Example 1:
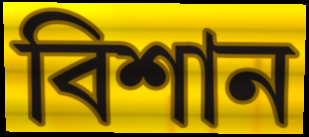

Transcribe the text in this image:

বিশান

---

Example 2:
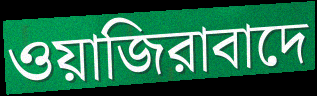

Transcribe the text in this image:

ওয়াজিরাবাদে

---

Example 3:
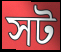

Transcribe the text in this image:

সট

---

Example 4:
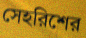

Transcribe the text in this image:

সেহরিশের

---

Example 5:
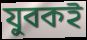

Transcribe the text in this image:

যুবকই